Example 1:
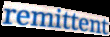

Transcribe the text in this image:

remittent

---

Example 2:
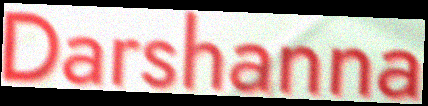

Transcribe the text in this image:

Darshanna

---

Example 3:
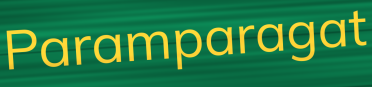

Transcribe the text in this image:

Paramparagat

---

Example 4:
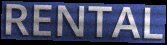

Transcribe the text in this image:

RENTAL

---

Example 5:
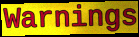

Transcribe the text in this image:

Warnings